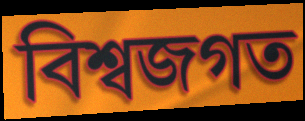
বিশ্বজগত